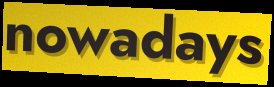
nowadays